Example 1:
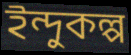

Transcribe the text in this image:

ইন্দুকল্প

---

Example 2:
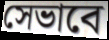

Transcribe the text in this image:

সেভাবে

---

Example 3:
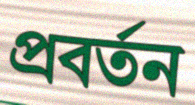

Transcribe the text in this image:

প্ৰবৰ্তন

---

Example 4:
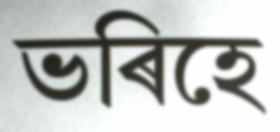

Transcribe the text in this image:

ভৰিহে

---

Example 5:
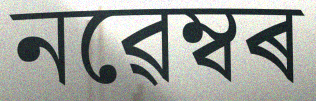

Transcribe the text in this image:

নৱেম্বৰ